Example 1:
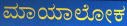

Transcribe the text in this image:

ಮಾಯಾಲೋಕ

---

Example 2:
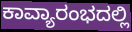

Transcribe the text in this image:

ಕಾವ್ಯಾರಂಭದಲ್ಲಿ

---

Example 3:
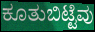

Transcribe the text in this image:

ಕೂತುಬಿಟ್ಟೆವು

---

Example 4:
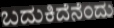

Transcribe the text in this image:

ಬದುಕಿದೆನೆಂದು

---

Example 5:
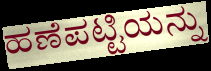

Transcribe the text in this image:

ಹಣೆಪಟ್ಟಿಯನ್ನು